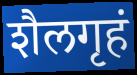
शैलगृहं